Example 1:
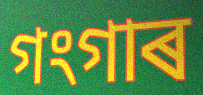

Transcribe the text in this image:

গংগাৰ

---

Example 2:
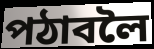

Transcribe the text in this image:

পঠাবলৈ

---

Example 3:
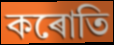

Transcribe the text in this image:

কৰোতি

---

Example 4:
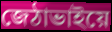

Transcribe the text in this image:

জেঠাভাইয়ে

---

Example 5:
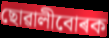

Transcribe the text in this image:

ছোৱালীবোৰক